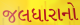
જલધારાનો